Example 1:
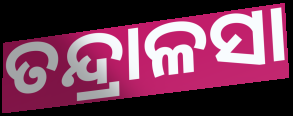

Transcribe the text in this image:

ତନ୍ଦ୍ରାଳସା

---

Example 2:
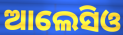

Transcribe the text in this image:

ଆଲେସିଓ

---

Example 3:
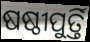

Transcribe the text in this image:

ଷଷ୍ଠୀପୁର୍ତ୍ତି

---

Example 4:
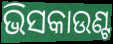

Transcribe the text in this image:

ଭିସକାଉଣ୍ଟ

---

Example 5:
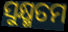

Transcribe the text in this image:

ସୁକ୍ଷ୍ମତମ